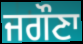
ਜਗੌਣਾ